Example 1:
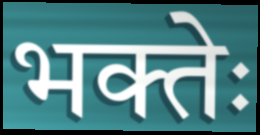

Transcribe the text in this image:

भक्तेः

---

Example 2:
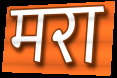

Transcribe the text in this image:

मरा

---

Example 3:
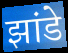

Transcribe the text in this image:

झांडे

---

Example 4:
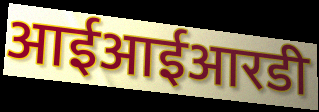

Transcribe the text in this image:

आईआईआरडी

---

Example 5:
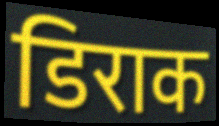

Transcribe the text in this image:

डिराक